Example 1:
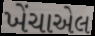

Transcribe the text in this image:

ખેંચાએલ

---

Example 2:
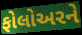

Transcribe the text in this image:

ફોલોઅરને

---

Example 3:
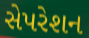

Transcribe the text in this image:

સેપરેશન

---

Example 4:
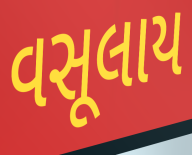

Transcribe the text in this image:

વસૂલાય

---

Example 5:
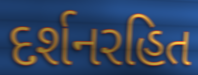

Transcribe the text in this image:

દર્શનરહિત